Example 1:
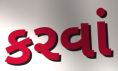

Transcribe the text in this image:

કરવાં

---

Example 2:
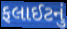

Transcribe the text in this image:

ફલાઈટનું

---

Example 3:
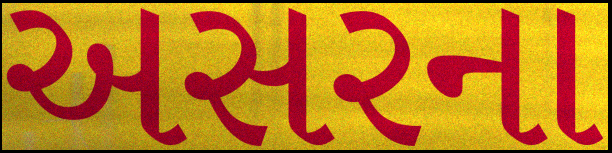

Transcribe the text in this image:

અસરના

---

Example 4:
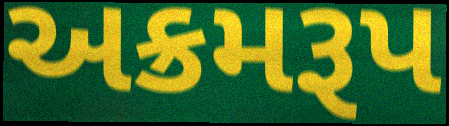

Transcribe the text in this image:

અક્રમરૂપ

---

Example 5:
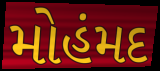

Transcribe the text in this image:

મોહંમદ